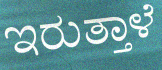
ಇರುತ್ತಾಳೆ